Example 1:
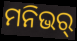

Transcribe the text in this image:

ମନିଭର୍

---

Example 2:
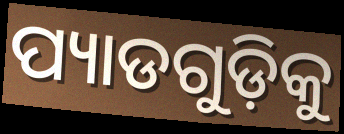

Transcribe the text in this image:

ପ୍ୟାଡଗୁଡ଼ିକୁ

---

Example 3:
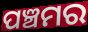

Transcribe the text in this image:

ପଞ୍ଚମର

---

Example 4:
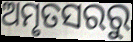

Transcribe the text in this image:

ଅମୃତସରରୁ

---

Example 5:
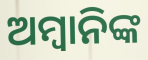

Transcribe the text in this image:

ଅମ୍ବାନିଙ୍କ